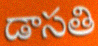
డాసతి